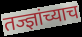
तज्ज्ञांच्याच